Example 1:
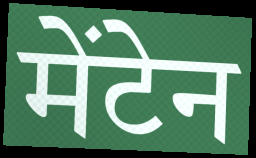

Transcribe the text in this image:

मेंटेन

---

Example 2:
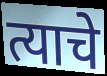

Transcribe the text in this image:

त्याचे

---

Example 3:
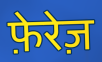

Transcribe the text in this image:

फ़ेरेज़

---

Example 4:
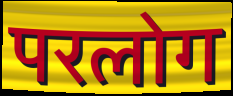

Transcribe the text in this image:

परलोग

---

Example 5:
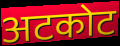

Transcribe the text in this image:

अटकोट